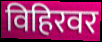
विहिरवर